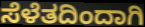
ಸೆಳೆತದಿಂದಾಗಿ